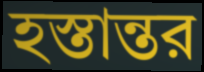
হস্তান্তর